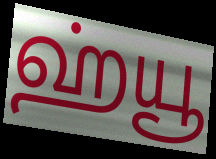
ஹ்யூ